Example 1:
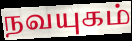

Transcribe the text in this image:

நவயுகம்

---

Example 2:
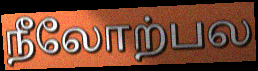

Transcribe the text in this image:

நீலோற்பல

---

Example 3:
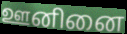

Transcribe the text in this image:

ஊனினை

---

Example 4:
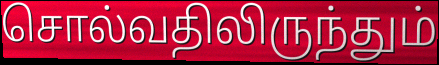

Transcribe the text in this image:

சொல்வதிலிருந்தும்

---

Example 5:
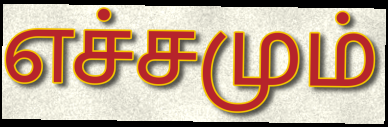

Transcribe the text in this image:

எச்சமும்